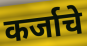
कर्जाचे